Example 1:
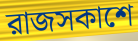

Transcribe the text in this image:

রাজসকাশে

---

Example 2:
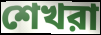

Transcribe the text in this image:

শেখরা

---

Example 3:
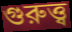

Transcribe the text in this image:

গুরুত্ত্ব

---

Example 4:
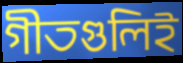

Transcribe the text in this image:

গীতগুলিই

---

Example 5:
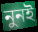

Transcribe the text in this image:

নুনই